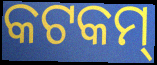
କଟକମ୍